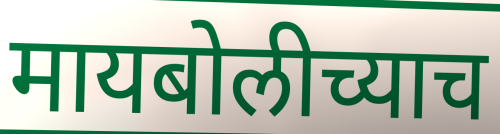
मायबोलीच्याच